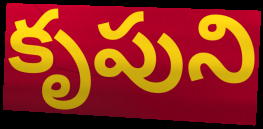
కృపుని